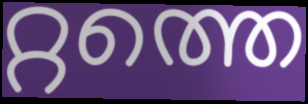
റ്റത്തെ